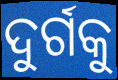
ଦୁର୍ଗକୁ